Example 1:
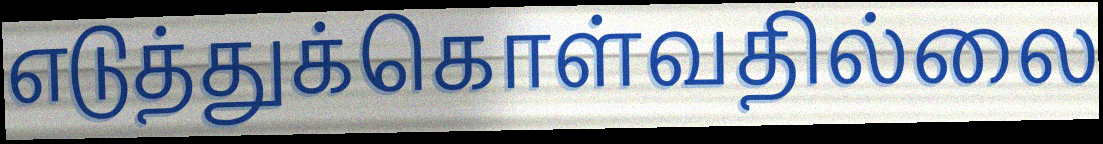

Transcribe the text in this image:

எடுத்துக்கொள்வதில்லை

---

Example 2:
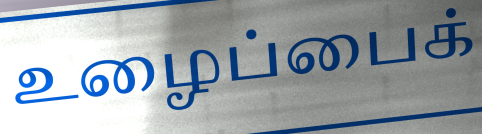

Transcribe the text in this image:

உழைப்பைக்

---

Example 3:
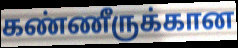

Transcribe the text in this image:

கண்ணீருக்கான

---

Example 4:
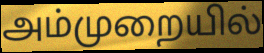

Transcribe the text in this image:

அம்முறையில்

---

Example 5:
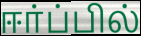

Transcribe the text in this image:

ஈர்ப்பில்